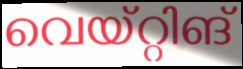
വെയ്റ്റിങ്